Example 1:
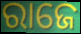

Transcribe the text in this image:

ରାଜେ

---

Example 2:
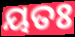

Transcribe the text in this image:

ୟତଃ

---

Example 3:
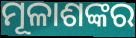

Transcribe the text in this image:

ମୂଳାଶଙ୍କର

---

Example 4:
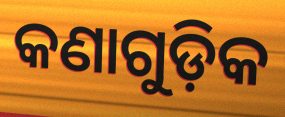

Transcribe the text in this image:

କଣାଗୁଡ଼ିକ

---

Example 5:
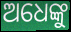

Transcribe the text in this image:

ଅଧେଙ୍କୁ